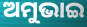
ଅମୁଭାଇ